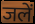
जलें